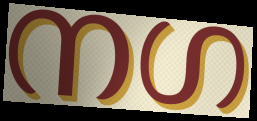
നഗ